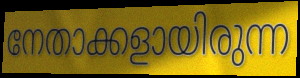
നേതാക്കളായിരുന്ന